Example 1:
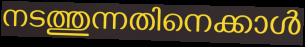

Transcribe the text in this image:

നടത്തുന്നതിനെക്കാൾ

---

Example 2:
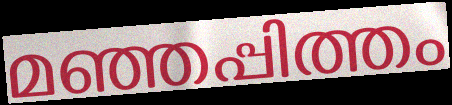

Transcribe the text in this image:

മഞ്ഞപ്പിത്തം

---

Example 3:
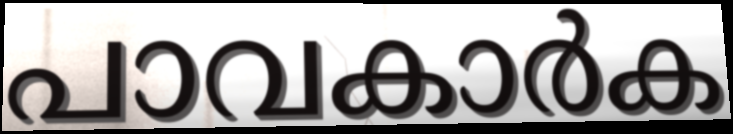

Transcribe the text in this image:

പാവകാർക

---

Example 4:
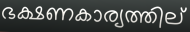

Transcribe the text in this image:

ഭക്ഷണകാര്യത്തില്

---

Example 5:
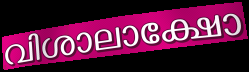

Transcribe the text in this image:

വിശാലാക്ഷോ